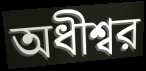
অধীশ্বর